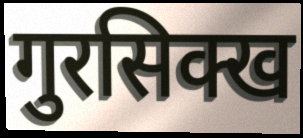
गुरसिक्ख